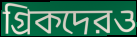
গ্রিকদেরও